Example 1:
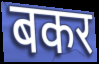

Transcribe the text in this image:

बकर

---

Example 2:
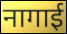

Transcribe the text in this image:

नागाई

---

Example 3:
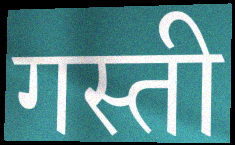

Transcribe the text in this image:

गस्ती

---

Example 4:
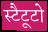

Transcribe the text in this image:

स्टैटूटो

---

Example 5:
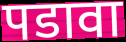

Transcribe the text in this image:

पडावा